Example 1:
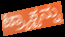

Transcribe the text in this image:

ಟ್ರ್ಯಾಕ್ಟನ್ನು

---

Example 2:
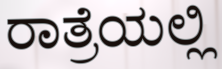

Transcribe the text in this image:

ರಾತ್ರೆಯಲ್ಲಿ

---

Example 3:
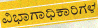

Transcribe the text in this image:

ವಿಭಾಗಾಧಿಕಾರಿಗಳ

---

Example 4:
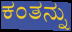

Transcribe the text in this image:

ಕಂತನ್ನು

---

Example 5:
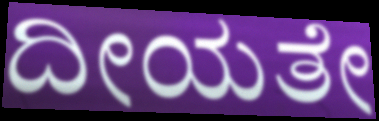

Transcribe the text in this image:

ದೀಯತೇ